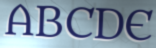
ABCDE